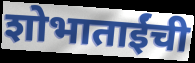
शोभाताईंची